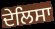
ਦੇਲਿਸਾ